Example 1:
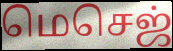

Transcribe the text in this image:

மெசெஜ்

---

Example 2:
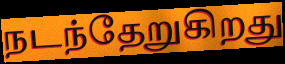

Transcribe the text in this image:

நடந்தேறுகிறது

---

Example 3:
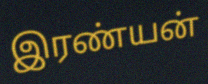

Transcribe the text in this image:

இரண்யன்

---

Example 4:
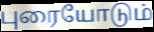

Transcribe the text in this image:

புரையோடும்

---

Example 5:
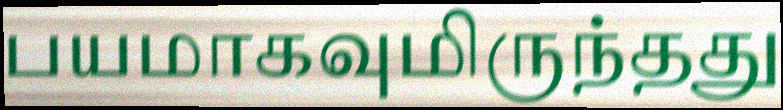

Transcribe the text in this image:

பயமாகவுமிருந்தது